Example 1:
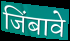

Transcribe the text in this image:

जिंबावे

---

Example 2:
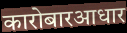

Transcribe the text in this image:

कारोबारआधार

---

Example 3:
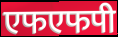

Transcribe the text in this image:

एफएफपी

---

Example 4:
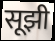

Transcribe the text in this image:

सूझी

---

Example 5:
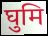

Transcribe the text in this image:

घुमि